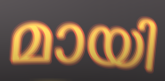
മായി